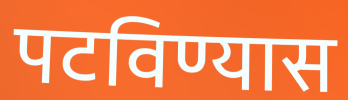
पटविण्यास